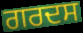
ਗਰਦਸ